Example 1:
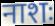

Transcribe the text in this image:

नाशः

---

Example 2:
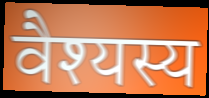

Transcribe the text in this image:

वैश्यस्य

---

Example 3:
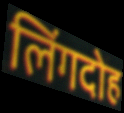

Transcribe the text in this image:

लिंगदोह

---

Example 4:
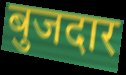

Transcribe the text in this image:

बुजदार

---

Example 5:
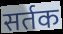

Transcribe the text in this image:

सर्तक